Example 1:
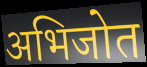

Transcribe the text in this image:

अभिजोत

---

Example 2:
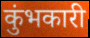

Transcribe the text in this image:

कुंभकारी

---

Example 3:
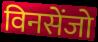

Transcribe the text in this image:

विनसेंजो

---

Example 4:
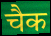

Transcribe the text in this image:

चैक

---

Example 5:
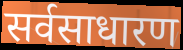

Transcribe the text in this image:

सर्वसाधारण